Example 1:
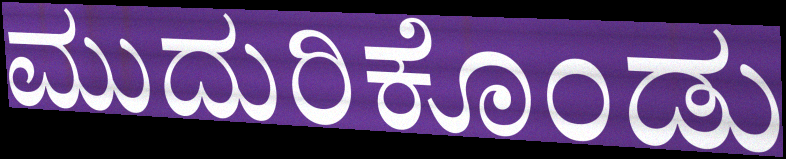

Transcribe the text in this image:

ಮುದುರಿಕೊಂಡು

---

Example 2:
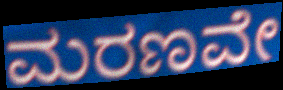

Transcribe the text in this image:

ಮರಣವೇ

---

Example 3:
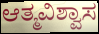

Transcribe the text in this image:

ಆತ್ಮವಿಶ್ವಾಸ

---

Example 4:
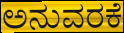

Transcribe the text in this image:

ಅನುವರಕೆ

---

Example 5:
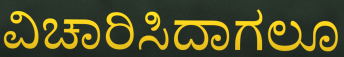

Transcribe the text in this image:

ವಿಚಾರಿಸಿದಾಗಲೂ